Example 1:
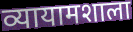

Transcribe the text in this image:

व्यायामशाला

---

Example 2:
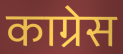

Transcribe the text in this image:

काग्रेस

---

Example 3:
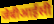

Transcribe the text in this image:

जेबीआईसी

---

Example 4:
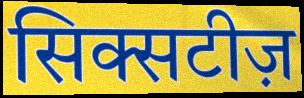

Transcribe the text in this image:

सिक्सटीज़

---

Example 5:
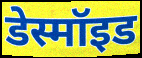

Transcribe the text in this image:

डेस्मॉइड